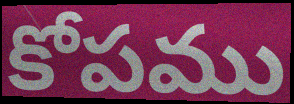
కోపము